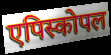
एपिस्कोपल